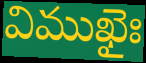
విముఖైః